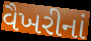
વૈખરીનાં